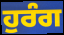
ਹੁਰੰਗ